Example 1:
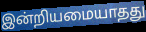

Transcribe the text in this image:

இன்றியமையாதது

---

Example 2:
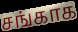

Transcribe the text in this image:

சங்காக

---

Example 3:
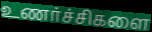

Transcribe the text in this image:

உணர்ச்சிகளை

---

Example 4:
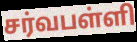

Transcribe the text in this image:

சர்வபள்ளி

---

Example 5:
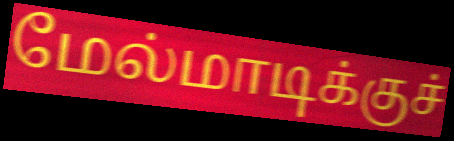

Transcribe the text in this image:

மேல்மாடிக்குச்